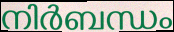
നിർബന്ധം